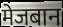
मेजबान